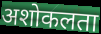
अशोकलता